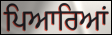
ਪਿਆਰਿਆਂ